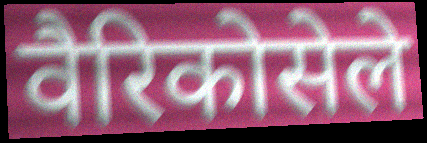
वैरिकोसेले